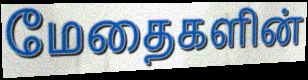
மேதைகளின்